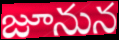
జూనున